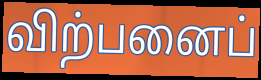
விற்பனைப்